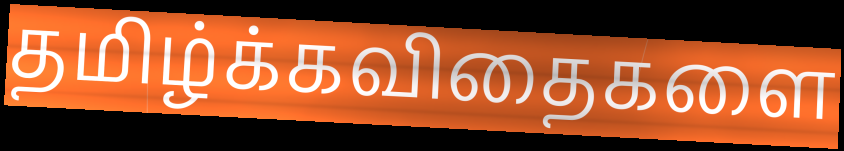
தமிழ்க்கவிதைகளை